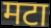
मटा